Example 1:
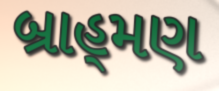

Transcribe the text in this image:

બ્રાહ્‌મણ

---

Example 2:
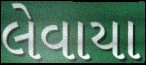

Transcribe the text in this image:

લેવાયા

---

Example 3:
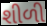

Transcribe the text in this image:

શીળી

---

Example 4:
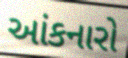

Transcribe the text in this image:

આંકનારો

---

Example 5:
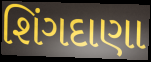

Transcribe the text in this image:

શિંગદાણા